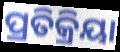
ପ୍ରତିକ୍ରିୟା